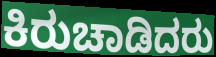
ಕಿರುಚಾಡಿದರು